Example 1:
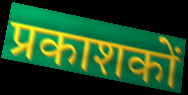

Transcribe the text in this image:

प्रकाशकों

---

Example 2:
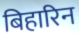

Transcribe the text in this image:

बिहारिन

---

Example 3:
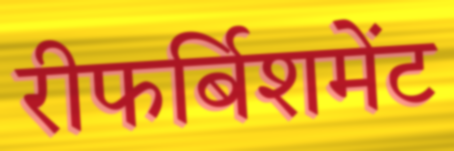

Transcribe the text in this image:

रीफर्बिशमेंट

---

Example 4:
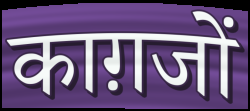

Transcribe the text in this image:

काग़जों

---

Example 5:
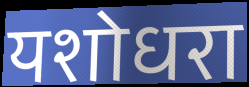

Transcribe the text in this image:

यशोधरा